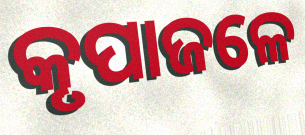
କୃପାଜଳେ